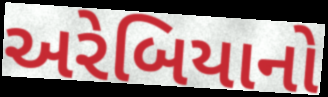
અરેબિયાનો